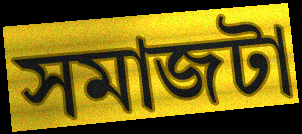
সমাজটা